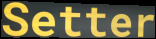
Setter